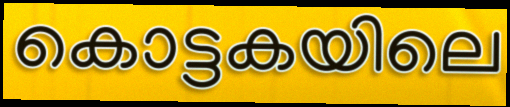
കൊട്ടകയിലെ